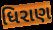
ધિરાણ